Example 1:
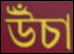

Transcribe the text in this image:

উঁচা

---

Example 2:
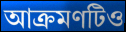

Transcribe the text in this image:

আক্রমণটিও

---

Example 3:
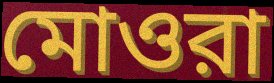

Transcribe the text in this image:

মোওরা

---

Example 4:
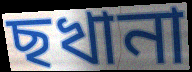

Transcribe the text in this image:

ছখানা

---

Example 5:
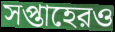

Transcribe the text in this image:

সপ্তাহেরও